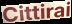
Cittirai